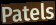
Patels